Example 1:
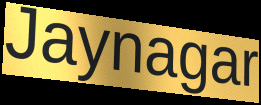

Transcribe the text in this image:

Jaynagar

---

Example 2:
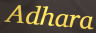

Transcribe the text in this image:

Adhara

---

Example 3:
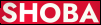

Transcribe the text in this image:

SHOBA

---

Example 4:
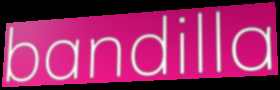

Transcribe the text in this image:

bandilla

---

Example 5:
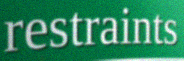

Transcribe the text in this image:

restraints